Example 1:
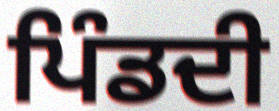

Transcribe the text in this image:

ਪਿੰਡਦੀ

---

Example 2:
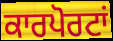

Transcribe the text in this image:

ਕਾਰਪੋਰਟਾਂ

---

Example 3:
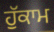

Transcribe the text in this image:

ਹੁੱਕਾਮ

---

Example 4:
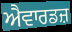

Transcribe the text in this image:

ਐਵਾਰਡਜ਼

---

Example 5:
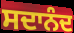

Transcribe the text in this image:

ਸਦਾਨੰਦ